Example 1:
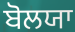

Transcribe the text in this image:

ਬੋਲਯਾ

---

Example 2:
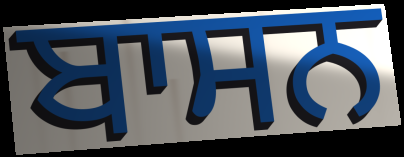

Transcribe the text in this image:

ਬਾਸਨ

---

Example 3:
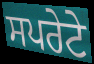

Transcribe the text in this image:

ਸਪਰੇਟੇ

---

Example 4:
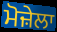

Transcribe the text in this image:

ਮੋਜ਼ੇਲਾ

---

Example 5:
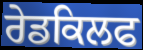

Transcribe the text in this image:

ਰੇਡਕਿਲਫ